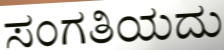
ಸಂಗತಿಯದು